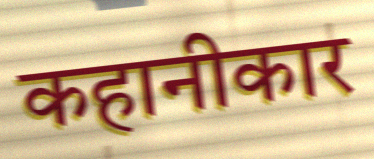
कहानीकार